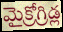
మైక్రోగ్రిడ్ల